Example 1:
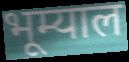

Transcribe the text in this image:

भूम्याल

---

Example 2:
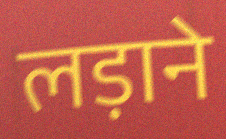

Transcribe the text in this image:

लड़ाने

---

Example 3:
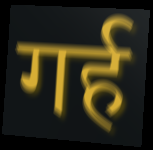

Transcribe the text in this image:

गर्ह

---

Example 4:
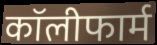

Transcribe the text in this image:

कॉलीफार्म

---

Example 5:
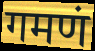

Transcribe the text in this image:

गमणं